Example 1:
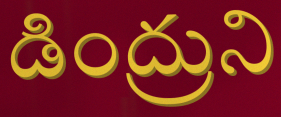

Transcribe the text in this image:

డింద్రుని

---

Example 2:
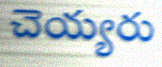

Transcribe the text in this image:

చెయ్యరు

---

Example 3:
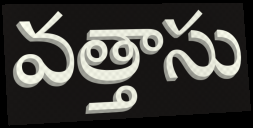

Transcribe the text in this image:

వత్తాసు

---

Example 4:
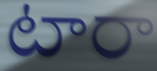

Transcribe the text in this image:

టారా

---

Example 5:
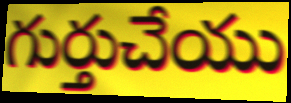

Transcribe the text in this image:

గుర్తుచేయు